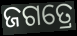
ଜଗତ୍ରେ